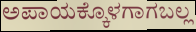
ಅಪಾಯಕ್ಕೊಳಗಾಗಬಲ್ಲ